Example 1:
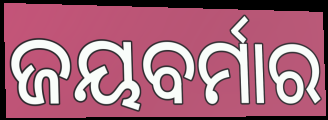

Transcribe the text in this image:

ଜୟବର୍ମାର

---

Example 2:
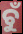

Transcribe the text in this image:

ଚୁଁ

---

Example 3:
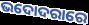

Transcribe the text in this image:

ଭଦୋଦରାରେ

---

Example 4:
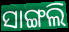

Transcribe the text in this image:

ସାଙ୍ଗଲି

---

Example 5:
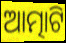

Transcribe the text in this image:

ଆତ୍ମାଟି